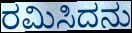
ರಮಿಸಿದನು